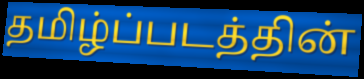
தமிழ்ப்படத்தின்